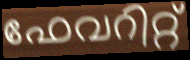
ഫേവറിറ്റ്